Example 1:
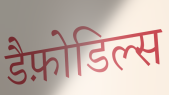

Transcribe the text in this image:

डैफ़ोडिल्स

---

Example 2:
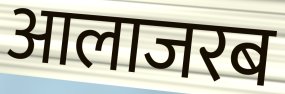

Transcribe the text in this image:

आलाजरब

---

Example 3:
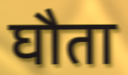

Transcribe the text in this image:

घौता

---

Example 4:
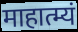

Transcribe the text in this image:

माहात्म्यं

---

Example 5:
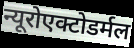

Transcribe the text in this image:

न्यूरोएक्टोडर्मल